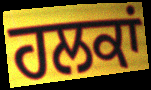
ਹਲਕਾਂ